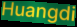
Huangdi